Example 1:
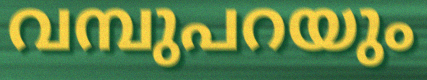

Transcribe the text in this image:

വമ്പുപറയും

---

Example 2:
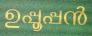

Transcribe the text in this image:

ഉപ്പൂപ്പൻ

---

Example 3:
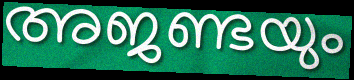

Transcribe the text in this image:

അജണ്ടയും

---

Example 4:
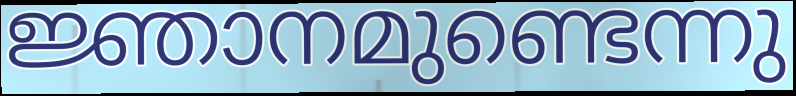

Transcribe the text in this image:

ജ്ഞാനമുണ്ടെന്നു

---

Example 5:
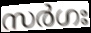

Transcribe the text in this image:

സർഗഃ